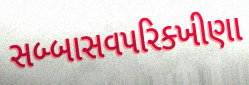
સબ્બાસવપરિક્ખીણા